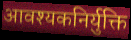
आवश्यकनिर्युक्ति